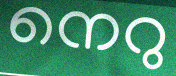
നെറു